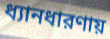
ধ্যানধারণায়